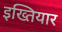
इख्तियार